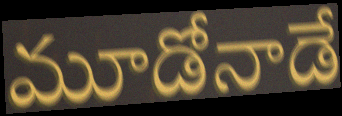
మూడోనాడే